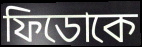
ফিডোকে